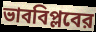
ভাববিপ্লবের